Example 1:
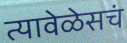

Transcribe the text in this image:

त्यावेळेसचं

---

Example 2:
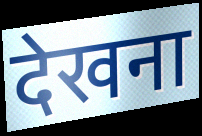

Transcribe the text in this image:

देखना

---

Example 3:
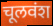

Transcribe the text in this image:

चूलवंश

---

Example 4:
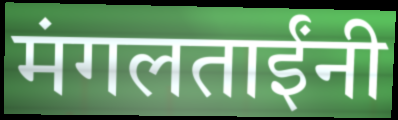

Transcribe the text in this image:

मंगलताईंनी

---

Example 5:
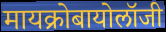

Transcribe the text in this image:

मायक्रोबायोलॉजी